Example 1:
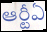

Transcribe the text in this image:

ఆర్టీఏ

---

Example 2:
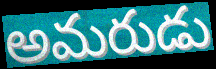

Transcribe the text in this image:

అమరుడు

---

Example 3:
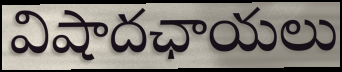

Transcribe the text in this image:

విషాదఛాయలు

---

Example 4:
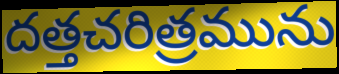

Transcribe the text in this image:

దత్తచరిత్రమును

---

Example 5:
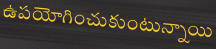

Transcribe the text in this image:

ఉపయోగించుకుంటున్నాయి